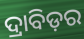
ଦ୍ରାବିଡ଼ର